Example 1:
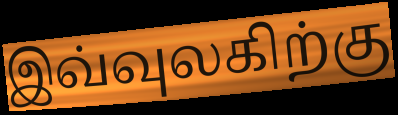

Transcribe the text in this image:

இவ்வுலகிற்கு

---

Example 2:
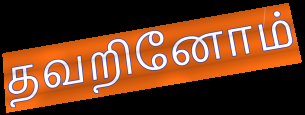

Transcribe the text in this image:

தவறினோம்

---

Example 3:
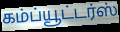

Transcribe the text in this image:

கம்ப்யூட்டர்ஸ்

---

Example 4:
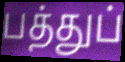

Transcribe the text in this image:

பத்துப்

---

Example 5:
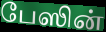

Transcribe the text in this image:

பேஸின்